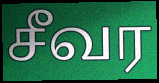
சீவர